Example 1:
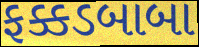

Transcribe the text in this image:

ફક્કડબાબા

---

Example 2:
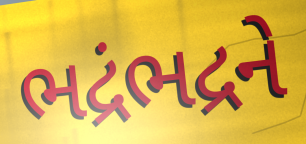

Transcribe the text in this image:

ભદ્રંભદ્રને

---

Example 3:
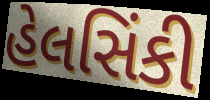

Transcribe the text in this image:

હેલસિંકી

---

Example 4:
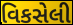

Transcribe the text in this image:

વિકસેલી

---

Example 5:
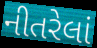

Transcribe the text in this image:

નીતરેલાં